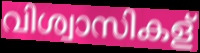
വിശ്വാസികള്